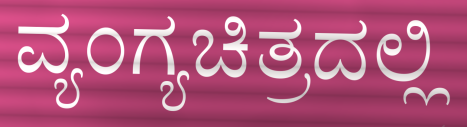
ವ್ಯಂಗ್ಯಚಿತ್ರದಲ್ಲಿ